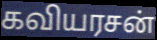
கவியரசன்